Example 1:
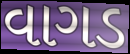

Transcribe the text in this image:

વાગડ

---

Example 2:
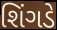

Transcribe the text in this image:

શિંગડે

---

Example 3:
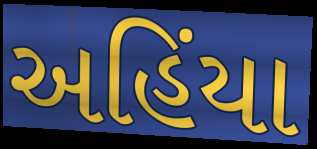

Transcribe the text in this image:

અહિંયા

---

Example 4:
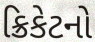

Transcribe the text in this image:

ક્રિકેટનો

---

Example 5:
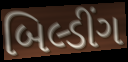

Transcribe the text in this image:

બિલ્ડીંગ